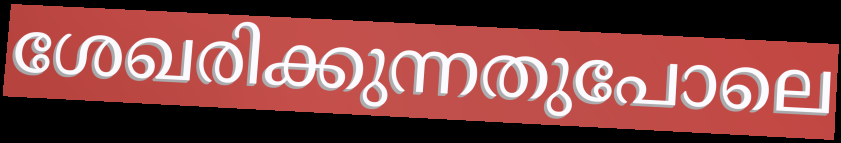
ശേഖരിക്കുന്നതുപോലെ